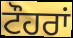
ਟੌਹਰਾਂ